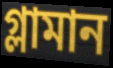
গ্লামান